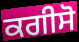
ਕਗੀਸੋ